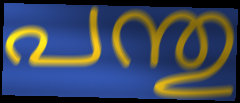
പന്തു